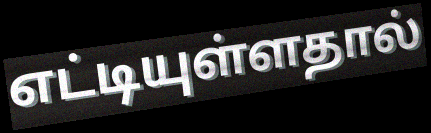
எட்டியுள்ளதால்